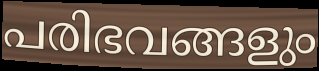
പരിഭവങ്ങളും